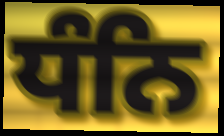
ਧੰਨਿ